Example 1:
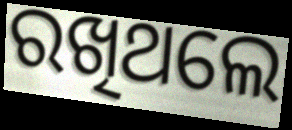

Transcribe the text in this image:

ରଖିଥଲେ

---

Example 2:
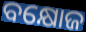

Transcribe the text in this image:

ବକ୍ଷୋଜ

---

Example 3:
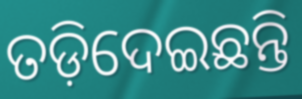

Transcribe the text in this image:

ତଡ଼ିଦେଇଛନ୍ତି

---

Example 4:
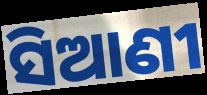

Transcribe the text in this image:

ସିଆଣୀ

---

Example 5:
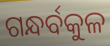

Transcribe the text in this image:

ଗନ୍ଧର୍ବକୁଳ